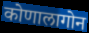
कोणालागोन